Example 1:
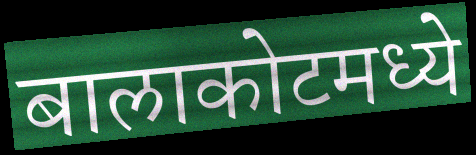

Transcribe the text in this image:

बालाकोटमध्ये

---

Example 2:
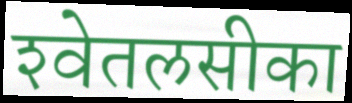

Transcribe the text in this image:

श्वेतलसीका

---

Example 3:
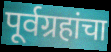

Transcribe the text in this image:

पूर्वग्रहांचा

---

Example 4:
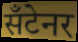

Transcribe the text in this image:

सँटेनर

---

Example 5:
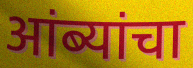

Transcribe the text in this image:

आंब्यांचा